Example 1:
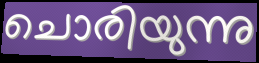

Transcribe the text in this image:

ചൊരിയുന്നു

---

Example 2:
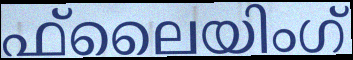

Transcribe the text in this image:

ഫ്‌ലൈയിംഗ്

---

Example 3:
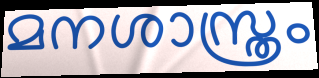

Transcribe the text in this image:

മനശാസ്ത്രം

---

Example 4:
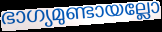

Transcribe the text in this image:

ഭാഗ്യമുണ്ടായല്ലോ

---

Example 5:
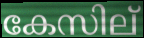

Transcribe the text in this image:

കേസില്